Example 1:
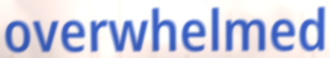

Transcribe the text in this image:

overwhelmed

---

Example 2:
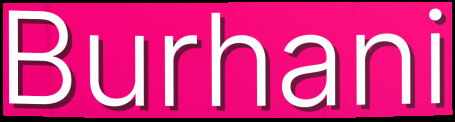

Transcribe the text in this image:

Burhani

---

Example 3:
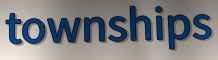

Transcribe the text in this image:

townships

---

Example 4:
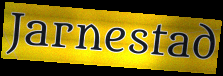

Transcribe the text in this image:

Jarnestad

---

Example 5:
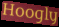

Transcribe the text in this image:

Hoogly